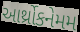
આર્થ્રોકનેમમ